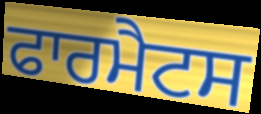
ਫਾਰਮੈਟਸ